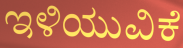
ಇಳಿಯುವಿಕೆ